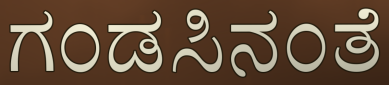
ಗಂಡಸಿನಂತೆ